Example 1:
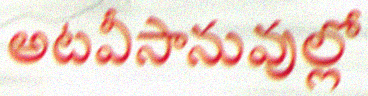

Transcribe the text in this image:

అటవీసానువుల్లో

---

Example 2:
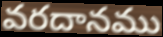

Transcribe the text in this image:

వరదానము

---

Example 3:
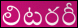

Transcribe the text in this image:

లిటరరీ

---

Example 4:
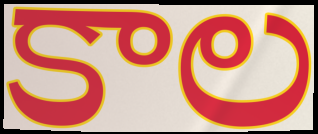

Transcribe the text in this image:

కాల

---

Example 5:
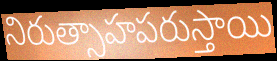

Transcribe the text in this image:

నిరుత్సాహపరుస్తాయి